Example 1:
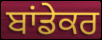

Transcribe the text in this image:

ਬਾਂਡੇਕਰ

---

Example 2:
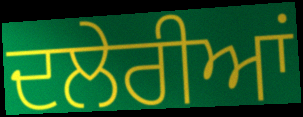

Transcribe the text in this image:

ਦਲੇਰੀਆਂ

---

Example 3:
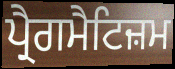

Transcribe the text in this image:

ਪ੍ਰੈਗਮੈਟਿਜ਼ਮ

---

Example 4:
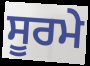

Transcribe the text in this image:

ਸੂਰਮੇ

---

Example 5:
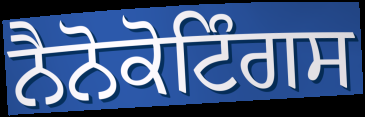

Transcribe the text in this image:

ਨੈਨੋਕੋਟਿੰਗਸ